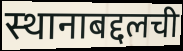
स्थानाबद्दलची